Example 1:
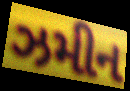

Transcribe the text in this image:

ઝમીન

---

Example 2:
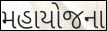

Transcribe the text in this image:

મહાયોજના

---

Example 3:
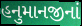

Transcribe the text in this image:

હનુમાનજીનાં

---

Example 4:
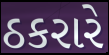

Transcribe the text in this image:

ઠકરારે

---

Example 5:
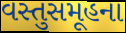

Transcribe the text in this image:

વસ્તુસમૂહના